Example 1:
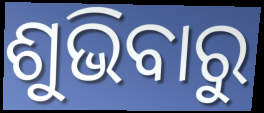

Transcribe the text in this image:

ଶୁଭିବାରୁ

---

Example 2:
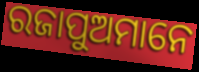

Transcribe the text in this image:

ରଜାପୁଅମାନେ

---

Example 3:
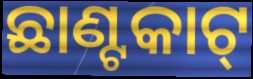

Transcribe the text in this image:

ଛାଣ୍ଟକାଟ୍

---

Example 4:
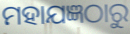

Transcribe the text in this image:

ମହାଯଜ୍ଞଠାରୁ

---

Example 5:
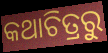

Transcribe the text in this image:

କଥାଚିତ୍ରରୁ